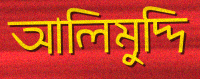
আলিমুদ্দি